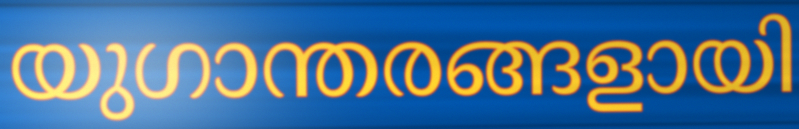
യുഗാന്തരങ്ങളായി